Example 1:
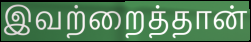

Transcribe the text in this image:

இவற்றைத்தான்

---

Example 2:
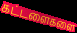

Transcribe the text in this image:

கட்டளைகளை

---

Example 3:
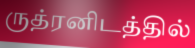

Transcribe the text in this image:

ருத்ரனிடத்தில்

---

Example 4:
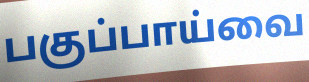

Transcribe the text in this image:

பகுப்பாய்வை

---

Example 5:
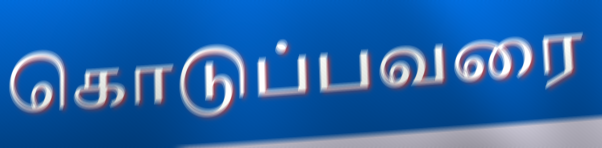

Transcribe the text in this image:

கொடுப்பவரை